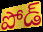
పోడ్